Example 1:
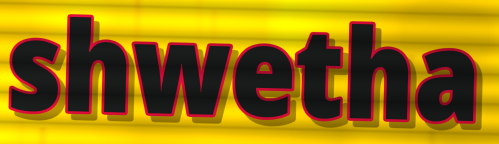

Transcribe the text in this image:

shwetha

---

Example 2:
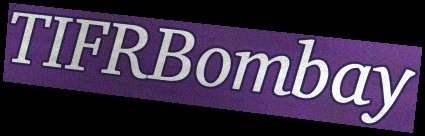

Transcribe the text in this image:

TIFRBombay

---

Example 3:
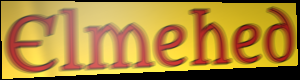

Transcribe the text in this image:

Elmehed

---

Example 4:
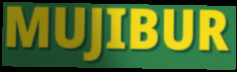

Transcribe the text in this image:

MUJIBUR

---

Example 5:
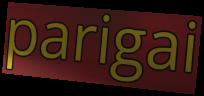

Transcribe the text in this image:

parigai